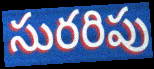
సురరిపు